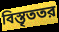
বিস্তৃততর